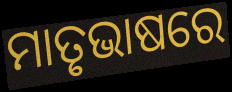
ମାତୃଭାଷରେ